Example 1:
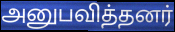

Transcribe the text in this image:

அனுபவித்தனர்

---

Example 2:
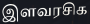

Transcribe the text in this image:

இளவரசிக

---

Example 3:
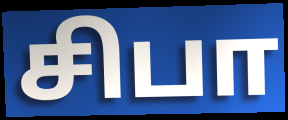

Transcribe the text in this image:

சிபா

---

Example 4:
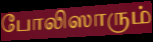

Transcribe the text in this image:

போலிஸாரும்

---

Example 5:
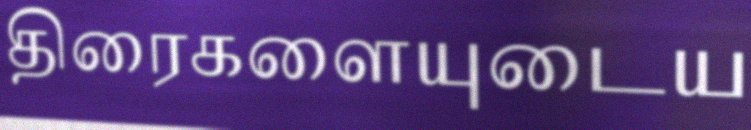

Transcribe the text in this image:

திரைகளையுடைய